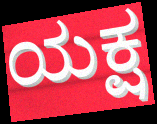
ಯಕ್ಷ